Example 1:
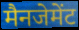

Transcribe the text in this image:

मैनजेमेंट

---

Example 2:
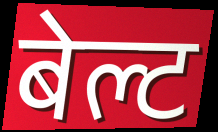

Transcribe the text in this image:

बेल्‍ट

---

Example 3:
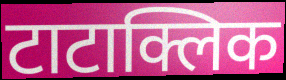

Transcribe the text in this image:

टाटाक्लिक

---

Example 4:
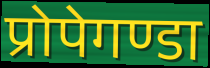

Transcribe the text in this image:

प्रोपेगण्डा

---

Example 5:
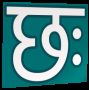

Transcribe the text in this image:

छः